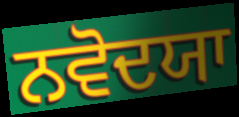
ਨਵੋਦਯਾ